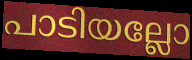
പാടിയല്ലോ